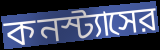
কনস্ট্যাসের